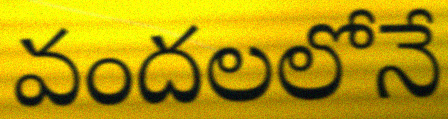
వందలలోనే